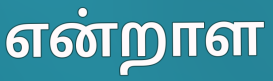
என்றாள